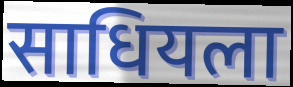
साधियला